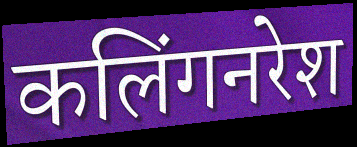
कलिंगनरेश